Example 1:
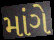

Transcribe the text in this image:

માંગે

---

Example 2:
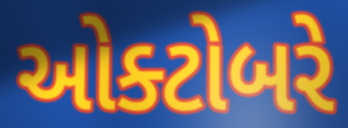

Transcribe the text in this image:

ઓક્ટોબરે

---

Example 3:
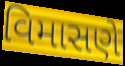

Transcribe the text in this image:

વિમાસણે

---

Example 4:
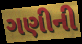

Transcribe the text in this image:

ગણીની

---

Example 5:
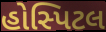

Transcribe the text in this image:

હોસ્પિટલ